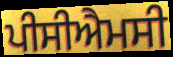
ਪੀਸੀਐਮਸੀ